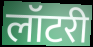
लॉटरी